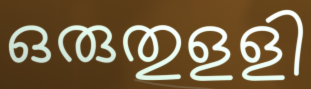
ഒരുതുളളി